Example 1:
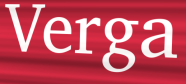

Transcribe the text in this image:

Verga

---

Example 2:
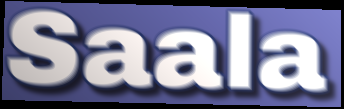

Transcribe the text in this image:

Saala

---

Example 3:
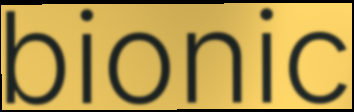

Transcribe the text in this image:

bionic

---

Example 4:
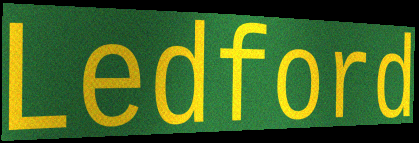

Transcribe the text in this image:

Ledford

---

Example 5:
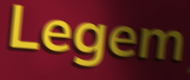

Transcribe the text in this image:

Legem